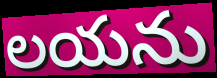
లయను